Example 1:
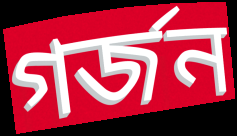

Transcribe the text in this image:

গর্জন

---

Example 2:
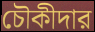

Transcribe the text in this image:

চৌকীদার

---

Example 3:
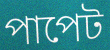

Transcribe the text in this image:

পাপেট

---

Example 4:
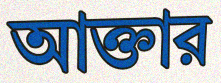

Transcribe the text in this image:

আক্তার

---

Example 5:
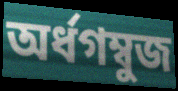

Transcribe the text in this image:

অর্ধগম্বুজ